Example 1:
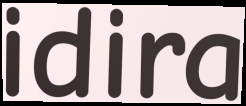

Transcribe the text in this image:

idira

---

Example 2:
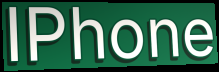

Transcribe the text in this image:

IPhone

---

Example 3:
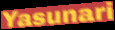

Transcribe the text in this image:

Yasunari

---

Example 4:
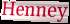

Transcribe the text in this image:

Henney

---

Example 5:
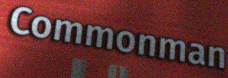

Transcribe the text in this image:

Commonman